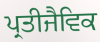
ਪ੍ਰਤੀਜੈਵਿਕ